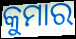
କୁମାର